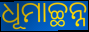
ଧୂମାଚ୍ଛନ୍ନ